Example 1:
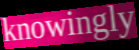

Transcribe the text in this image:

knowingly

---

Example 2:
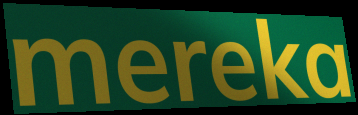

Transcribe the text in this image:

mereka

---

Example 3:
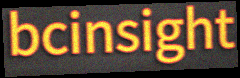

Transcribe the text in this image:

bcinsight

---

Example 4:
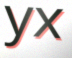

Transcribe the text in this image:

yx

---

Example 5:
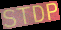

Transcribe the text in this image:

STDP